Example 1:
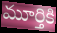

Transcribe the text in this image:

మూర్తికి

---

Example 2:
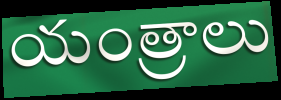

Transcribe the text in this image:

యంత్రాలు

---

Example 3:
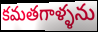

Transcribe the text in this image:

కమతగాళ్ళను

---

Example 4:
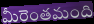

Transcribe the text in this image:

మీరెంతమంది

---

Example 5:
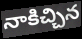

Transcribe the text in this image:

నాకిచ్చిన